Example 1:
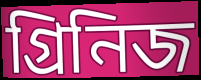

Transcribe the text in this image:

গ্রিনিজ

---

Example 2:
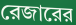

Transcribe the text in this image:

রেজারের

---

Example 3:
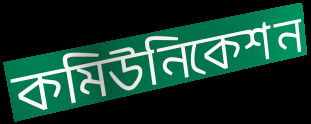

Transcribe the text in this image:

কমিউনিকেশন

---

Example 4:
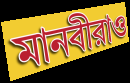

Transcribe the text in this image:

মানবীরাও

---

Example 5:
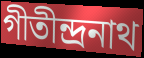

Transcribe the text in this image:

গীতীন্দ্রনাথ